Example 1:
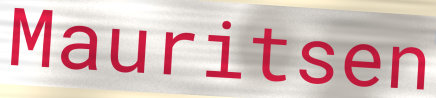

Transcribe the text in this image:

Mauritsen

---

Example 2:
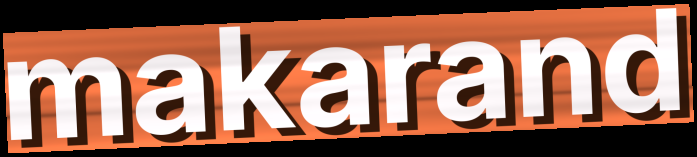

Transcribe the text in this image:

makarand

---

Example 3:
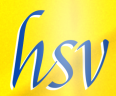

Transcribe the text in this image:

hsv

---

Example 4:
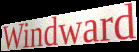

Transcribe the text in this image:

Windward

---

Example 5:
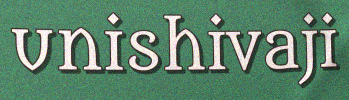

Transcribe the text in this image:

unishivaji